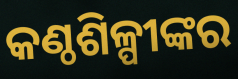
କଣ୍ଠଶିଳ୍ପୀଙ୍କର